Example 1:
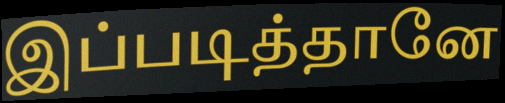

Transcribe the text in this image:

இப்படித்தானே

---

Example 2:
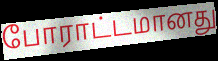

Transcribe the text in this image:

போராட்டமானது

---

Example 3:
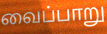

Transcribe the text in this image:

வைப்பாறு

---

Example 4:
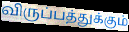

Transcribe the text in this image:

விருப்பத்துக்கும்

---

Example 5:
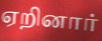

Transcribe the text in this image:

ஏறினார்